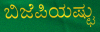
ಬಿಜೆಪಿಯಷ್ಟು